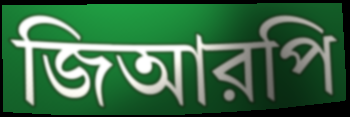
জিআরপি